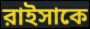
রাইসাকে